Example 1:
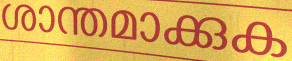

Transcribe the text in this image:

ശാന്തമാക്കുക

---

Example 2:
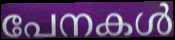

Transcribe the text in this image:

പേനകൾ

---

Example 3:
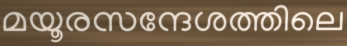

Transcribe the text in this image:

മയൂരസന്ദേശത്തിലെ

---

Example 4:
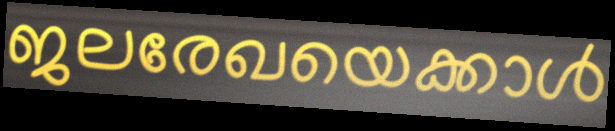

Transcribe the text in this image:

ജലരേഖയെക്കാൾ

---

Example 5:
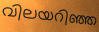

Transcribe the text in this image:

വിലയറിഞ്ഞ